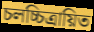
চলচ্চিত্রায়িত